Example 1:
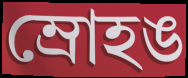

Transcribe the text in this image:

ম্রোহঙ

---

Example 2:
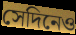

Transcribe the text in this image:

সেদিনেও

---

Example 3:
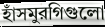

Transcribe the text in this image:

হাঁসমুরগিগুলো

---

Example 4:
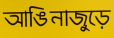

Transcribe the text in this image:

আঙিনাজুড়ে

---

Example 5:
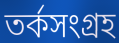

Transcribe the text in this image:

তর্কসংগ্রহ